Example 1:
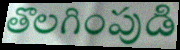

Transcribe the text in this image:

తొలగింపుడి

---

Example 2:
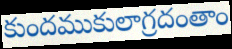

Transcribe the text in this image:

కుందముకులాగ్రదంతాం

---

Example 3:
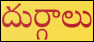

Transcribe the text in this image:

దుర్గాలు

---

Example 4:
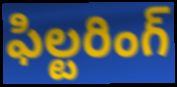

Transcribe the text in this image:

ఫిల్టరింగ్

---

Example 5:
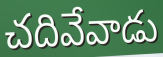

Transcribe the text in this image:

చదివేవాడు